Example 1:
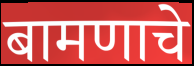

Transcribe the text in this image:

बामणाचे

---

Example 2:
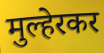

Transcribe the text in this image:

मुल्हेरकर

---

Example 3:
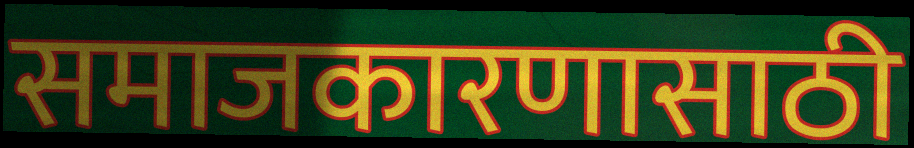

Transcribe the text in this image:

समाजकारणासाठी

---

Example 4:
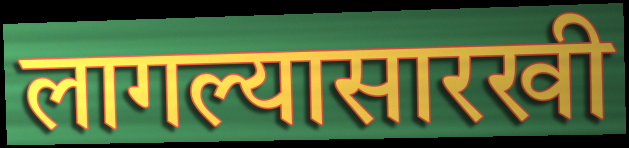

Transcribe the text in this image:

लागल्यासारखी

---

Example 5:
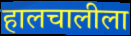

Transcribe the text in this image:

हालचालीला